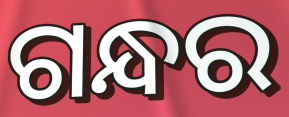
ଗନ୍ଧର